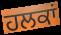
ਹਲਕਾਂ